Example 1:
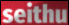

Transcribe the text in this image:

seithu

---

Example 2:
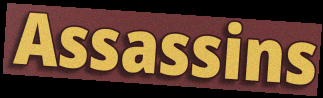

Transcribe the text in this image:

Assassins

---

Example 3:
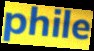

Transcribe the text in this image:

phile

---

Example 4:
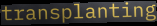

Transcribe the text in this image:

transplanting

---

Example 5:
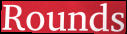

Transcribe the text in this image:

Rounds